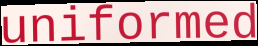
uniformed